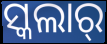
ସ୍କଲାର୍